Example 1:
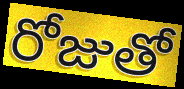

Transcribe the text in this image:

రోజుతో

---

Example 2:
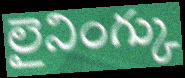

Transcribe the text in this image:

లైనింగ్కు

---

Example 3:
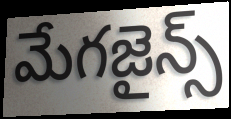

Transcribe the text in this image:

మేగజైన్స్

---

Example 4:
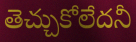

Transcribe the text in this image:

తెచ్చుకోలేదనీ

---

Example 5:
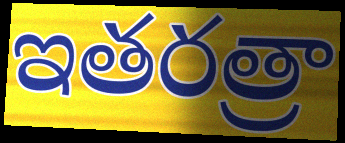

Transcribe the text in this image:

ఇతరత్రా